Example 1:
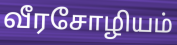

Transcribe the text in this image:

வீரசோழியம்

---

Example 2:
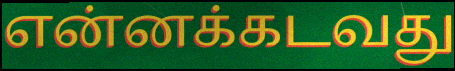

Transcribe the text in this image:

என்னக்கடவது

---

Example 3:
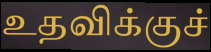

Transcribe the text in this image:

உதவிக்குச்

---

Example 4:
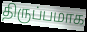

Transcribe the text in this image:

திருப்பமாக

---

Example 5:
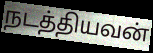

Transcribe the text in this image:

நடத்தியவன்